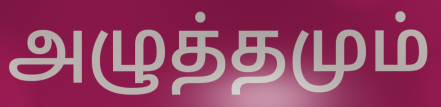
அழுத்தமும்